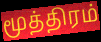
மூத்திரம்